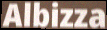
Albizza